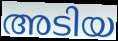
അടിയ